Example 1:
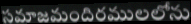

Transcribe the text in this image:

సమాజమందిరములలోను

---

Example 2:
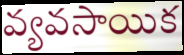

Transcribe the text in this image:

వ్యవసాయిక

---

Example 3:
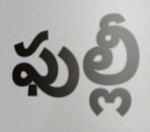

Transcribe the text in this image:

ఫుల్లీ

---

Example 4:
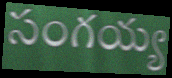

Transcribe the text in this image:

సంగయ్య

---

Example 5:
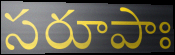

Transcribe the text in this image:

సరూపాః